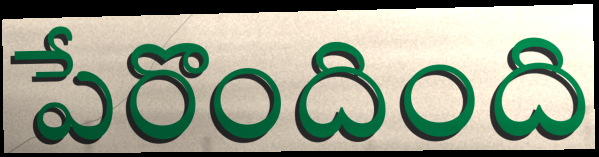
పేరొందింది